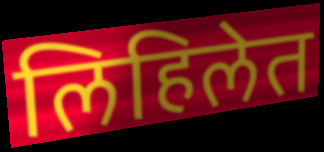
लिहिलेत